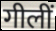
गीलीं